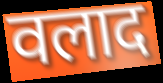
वलाद